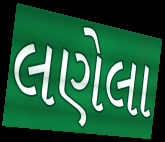
લણેલા